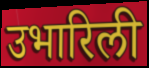
उभारिली